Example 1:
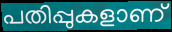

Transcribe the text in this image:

പതിപ്പുകളാണ്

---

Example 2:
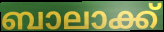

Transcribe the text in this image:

ബാലാക്ക്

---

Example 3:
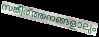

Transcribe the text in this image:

സങ്കീര്ത്തനങ്ങളാലും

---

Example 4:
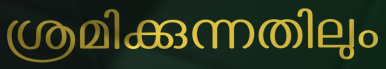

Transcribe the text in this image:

ശ്രമിക്കുന്നതിലും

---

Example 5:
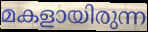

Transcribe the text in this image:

മകളായിരുന്ന